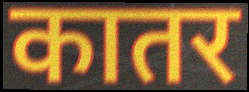
कातर